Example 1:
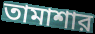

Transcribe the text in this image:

তামাশার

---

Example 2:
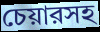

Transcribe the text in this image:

চেয়ারসহ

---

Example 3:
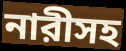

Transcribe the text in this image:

নারীসহ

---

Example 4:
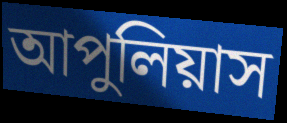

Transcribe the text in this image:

আপুলিয়াস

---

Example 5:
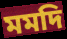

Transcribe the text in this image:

মমদি